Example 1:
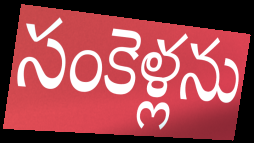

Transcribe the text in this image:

సంకెళ్లను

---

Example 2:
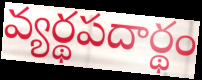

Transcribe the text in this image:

వ్యర్థపదార్థం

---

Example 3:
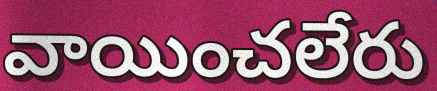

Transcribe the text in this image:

వాయించలేరు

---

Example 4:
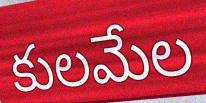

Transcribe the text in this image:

కులమేల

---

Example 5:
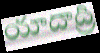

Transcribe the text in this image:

యాదాద్రి